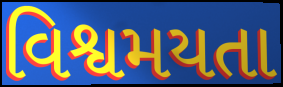
વિશ્વમયતા